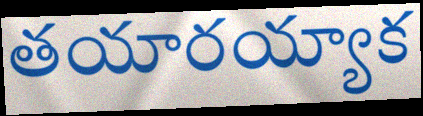
తయారయ్యాక